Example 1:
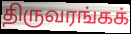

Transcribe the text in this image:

திருவரங்கக்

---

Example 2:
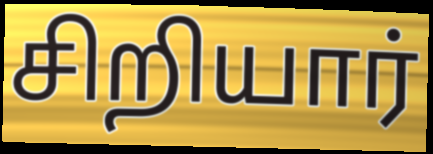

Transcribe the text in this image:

சிறியார்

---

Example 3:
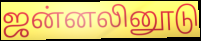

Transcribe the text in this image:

ஜன்னலினூடு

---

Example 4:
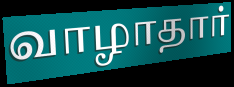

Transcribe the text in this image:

வாழாதார்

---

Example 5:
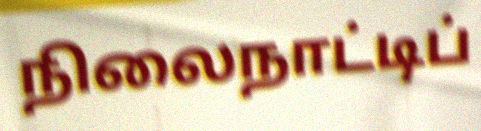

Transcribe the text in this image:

நிலைநாட்டிப்